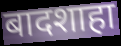
बादशाहा